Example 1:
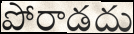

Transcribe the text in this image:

పోరాడదు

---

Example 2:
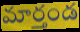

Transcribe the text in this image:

మార్తండ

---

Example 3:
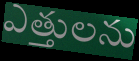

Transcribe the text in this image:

ఎత్తులను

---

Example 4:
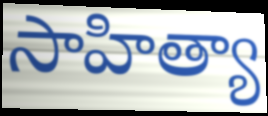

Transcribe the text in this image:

సాహిత్యా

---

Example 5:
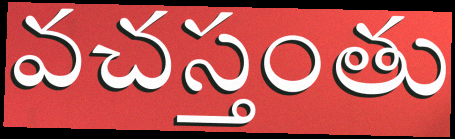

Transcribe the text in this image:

వచస్తంతు